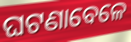
ଘଟଣାବେଳେ